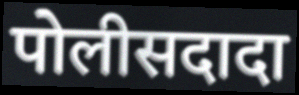
पोलीसदादा